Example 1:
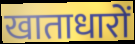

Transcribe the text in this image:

खाताधारों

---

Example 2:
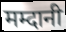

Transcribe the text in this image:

मम्दानी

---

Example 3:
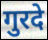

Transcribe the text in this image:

गुरदे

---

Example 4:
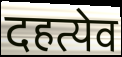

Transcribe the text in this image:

दहत्येव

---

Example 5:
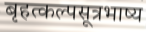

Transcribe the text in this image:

बृहत्कल्पसूत्रभाष्य